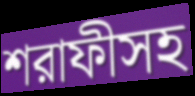
শরাফীসহ